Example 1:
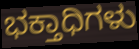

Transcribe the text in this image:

ಭಕ್ತಾಧಿಗಳು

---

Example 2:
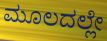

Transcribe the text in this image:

ಮೂಲದಲ್ಲೇ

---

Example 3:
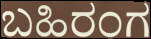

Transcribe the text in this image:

ಬಹಿರಂಗ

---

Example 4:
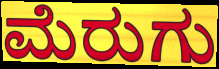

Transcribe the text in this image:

ಮೆರುಗು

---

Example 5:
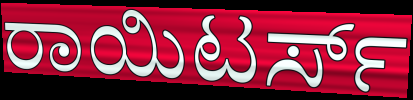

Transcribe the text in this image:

ರಾಯಿಟರ್ಸ್